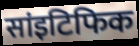
सांइटिफिक